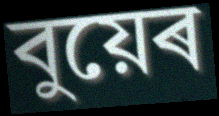
বুয়েৰ